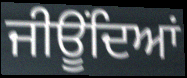
ਜੀਊਂਦਿਆਂ